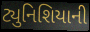
ટ્યુનિશિયાની